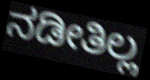
ನಡೀತಿಲ್ಲ